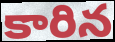
కారిన